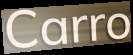
Carro